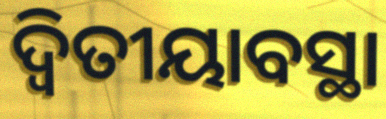
ଦ୍ବିତୀୟାବସ୍ଥା